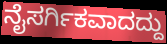
ನೈಸರ್ಗಿಕವಾದದ್ದು